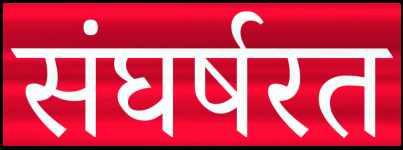
संघर्षरत